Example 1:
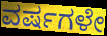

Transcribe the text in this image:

ವರ್ಷಗಳೇ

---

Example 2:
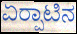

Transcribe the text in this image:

ಏರ‍್ಪಾಟಿನ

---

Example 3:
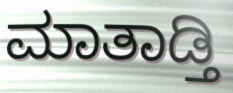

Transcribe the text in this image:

ಮಾತಾಡ್ತಿ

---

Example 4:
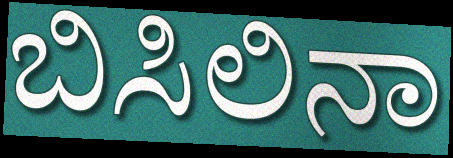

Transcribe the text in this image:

ಬಿಸಿಲಿನಾ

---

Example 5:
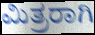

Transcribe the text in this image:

ಮಿತ್ರರಾಗಿ